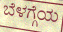
ಬೆಳಗ್ಗೆಯ